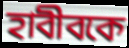
হাবীবকে